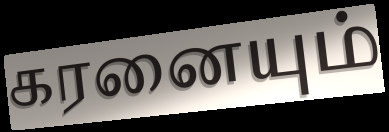
கரனையும்